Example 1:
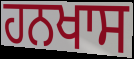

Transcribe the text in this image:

ਹਨਖਾਸ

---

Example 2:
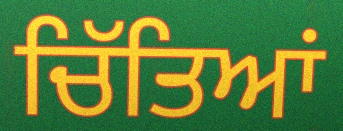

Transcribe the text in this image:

ਚਿੱਤਿਆਂ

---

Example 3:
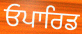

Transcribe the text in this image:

ਓਪਾਰਿਡ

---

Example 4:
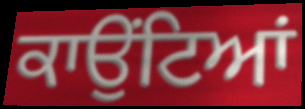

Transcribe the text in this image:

ਕਾਉਂਟਿਆਂ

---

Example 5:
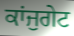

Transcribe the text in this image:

ਕਾਂਜੁਗੇਟ